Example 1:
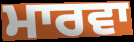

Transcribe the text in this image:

ਮਾਰਵਾ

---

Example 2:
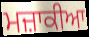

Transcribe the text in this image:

ਮਜ਼ਾਕੀਆ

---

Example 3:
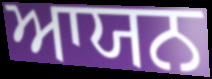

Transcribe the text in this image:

ਆਯਨ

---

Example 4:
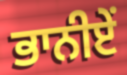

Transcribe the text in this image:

ਭਾਨੀਏਂ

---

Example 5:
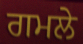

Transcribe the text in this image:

ਗਮਲੇ